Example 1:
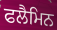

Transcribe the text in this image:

ਫਲੈਮਿਨ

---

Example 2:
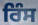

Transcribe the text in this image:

ਰਿੰਸ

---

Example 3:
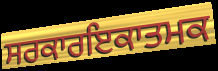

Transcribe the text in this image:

ਸਰਕਾਰਇਕਾਤਮਕ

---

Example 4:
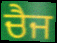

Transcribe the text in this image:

ਚੈਜ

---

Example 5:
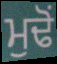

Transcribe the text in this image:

ਮੁਢੋਂ